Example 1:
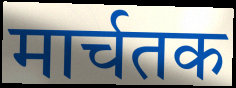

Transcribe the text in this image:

मार्चतक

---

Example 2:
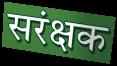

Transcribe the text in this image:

सरंक्षक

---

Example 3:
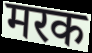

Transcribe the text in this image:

मरक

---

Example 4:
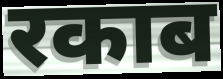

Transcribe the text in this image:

रकाब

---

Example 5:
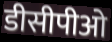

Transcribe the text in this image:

डीसीपीओ